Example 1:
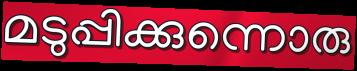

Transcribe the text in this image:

മടുപ്പിക്കുന്നൊരു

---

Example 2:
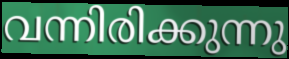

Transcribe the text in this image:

വന്നിരിക്കുന്നു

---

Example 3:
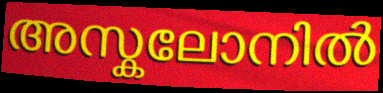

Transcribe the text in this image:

അസ്കലോനിൽ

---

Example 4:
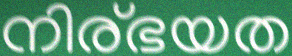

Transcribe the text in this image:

നിര്ഭയത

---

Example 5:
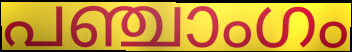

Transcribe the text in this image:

പഞ്ചാംഗം